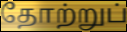
தோற்றுப்